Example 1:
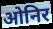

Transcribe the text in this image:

ओनिर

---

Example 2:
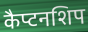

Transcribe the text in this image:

कैप्टनशिप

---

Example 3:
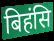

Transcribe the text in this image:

बिहंसि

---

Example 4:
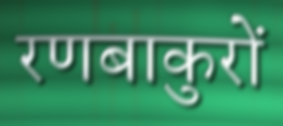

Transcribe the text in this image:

रणबाकुरों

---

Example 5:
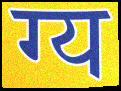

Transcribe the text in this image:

ग्य